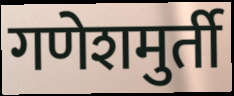
गणेशमुर्ती